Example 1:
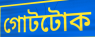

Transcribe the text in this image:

গোটটোক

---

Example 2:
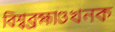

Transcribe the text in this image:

বিশ্বব্ৰহ্মাণ্ডখনক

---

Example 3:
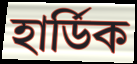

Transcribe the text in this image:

হাৰ্ডিক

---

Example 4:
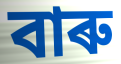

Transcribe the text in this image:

বাৰু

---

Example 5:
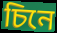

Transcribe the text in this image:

চিনে